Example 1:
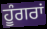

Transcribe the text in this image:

ਹੂੰਗਰਾਂ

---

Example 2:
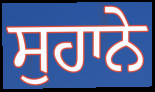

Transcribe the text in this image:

ਸੁਹਾਨੇ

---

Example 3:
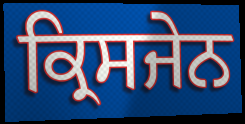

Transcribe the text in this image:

ਕ੍ਰਿਸਜੇਨ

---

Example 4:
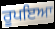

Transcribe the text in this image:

ਰੂਪਇਆ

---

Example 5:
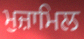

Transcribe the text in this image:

ਮੁਜ਼ਾਮਿਲ